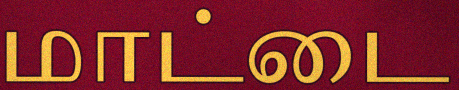
மாட்டை